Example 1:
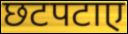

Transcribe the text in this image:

छटपटाए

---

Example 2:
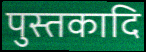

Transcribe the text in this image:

पुस्तकादि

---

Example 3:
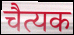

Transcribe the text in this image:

चैत्यक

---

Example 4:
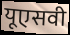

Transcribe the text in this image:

यूएसवी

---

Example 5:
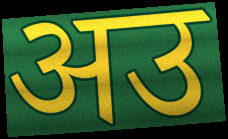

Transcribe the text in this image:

अउ